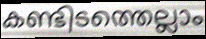
കണ്ടിടത്തെല്ലാം